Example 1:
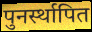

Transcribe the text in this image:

पुनर्स्‍थापित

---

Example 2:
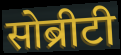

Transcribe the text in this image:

सोब्रीटी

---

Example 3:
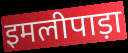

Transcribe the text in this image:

इमलीपाड़ा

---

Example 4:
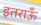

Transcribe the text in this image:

इतराऊँ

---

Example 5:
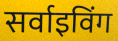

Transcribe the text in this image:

सर्वाइविंग